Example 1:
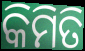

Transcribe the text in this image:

କିମିତି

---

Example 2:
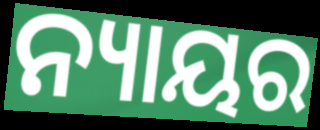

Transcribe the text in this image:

ନ୍ୟାୟର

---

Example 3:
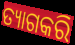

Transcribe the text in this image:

ତ୍ୟାଗକରି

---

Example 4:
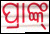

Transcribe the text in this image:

ପ୍ରାଙ୍କ୍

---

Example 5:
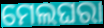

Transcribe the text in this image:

ମେଲଘରା